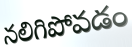
నలిగిపోవడం